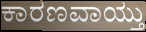
ಕಾರಣವಾಯ್ತು